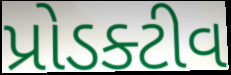
પ્રોડક્ટીવ